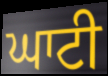
ਘਾਟੀ